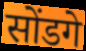
सोंडगे